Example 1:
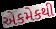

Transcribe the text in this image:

એકમેકથી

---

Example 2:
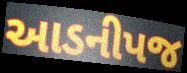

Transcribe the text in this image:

આડનીપજ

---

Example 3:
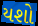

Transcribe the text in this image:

યશો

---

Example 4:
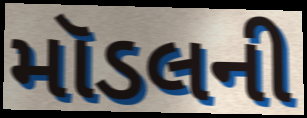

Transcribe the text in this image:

મૉડલની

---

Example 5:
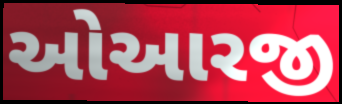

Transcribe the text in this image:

ઓઆરજી